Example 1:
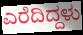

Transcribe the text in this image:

ಎರೆದಿದ್ದಳು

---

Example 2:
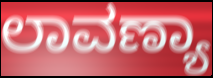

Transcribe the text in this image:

ಲಾವಣ್ಯಾ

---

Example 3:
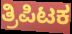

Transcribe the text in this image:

ತ್ರಿಪಿಟಕ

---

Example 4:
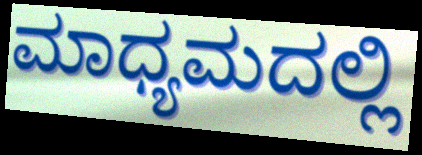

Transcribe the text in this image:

ಮಾಧ್ಯಮದಲ್ಲಿ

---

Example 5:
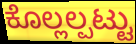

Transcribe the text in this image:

ಕೊಲ್ಲಲ್ಪಟ್ಟು